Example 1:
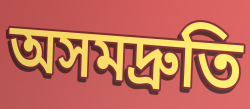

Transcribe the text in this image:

অসমদ্রুতি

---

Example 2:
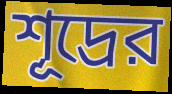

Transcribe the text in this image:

শূদ্রের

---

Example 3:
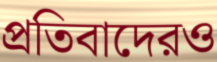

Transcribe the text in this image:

প্রতিবাদেরও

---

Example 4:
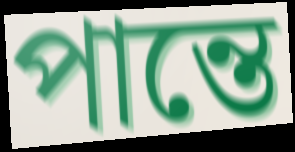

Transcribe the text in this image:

পান্তে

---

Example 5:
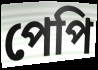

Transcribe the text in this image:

পেপি